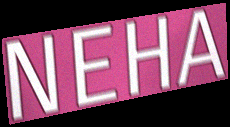
NEHA